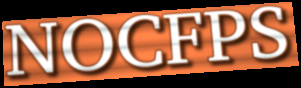
NOCFPS